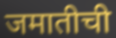
जमातीची